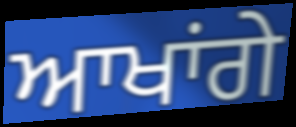
ਆਖਾਂਗੇ